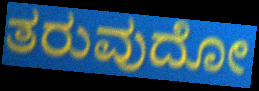
ತರುವುದೋ